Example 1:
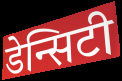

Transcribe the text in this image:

डेन्सिटी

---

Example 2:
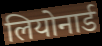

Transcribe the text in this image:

लियोनार्ड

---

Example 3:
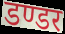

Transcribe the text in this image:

डण्डर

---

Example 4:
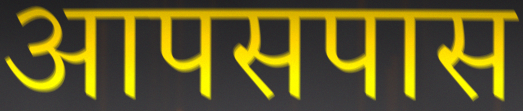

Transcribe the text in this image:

आपसपास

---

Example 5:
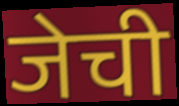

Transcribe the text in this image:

जेची